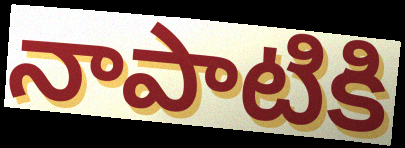
నాపాటికి